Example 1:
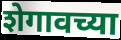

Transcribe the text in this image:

शेगावच्या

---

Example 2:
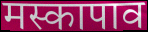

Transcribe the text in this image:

मस्कापाव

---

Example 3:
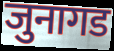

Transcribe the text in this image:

जुनागड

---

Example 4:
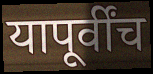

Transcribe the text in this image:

यापूर्वींच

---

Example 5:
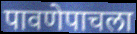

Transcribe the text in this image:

पावणेपाचला